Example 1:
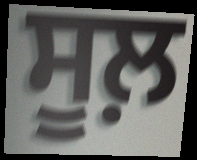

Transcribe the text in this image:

ਸੂਲ਼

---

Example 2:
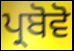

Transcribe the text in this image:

ਪ੍ਰਬੋਵੋ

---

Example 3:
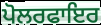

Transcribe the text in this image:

ਪੋਲਰਫਾਇਰ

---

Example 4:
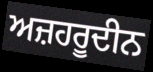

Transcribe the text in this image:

ਅਜ਼ਹਰੂਦੀਨ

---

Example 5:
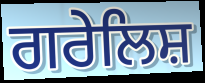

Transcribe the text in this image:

ਗਰੇਲਿਸ਼